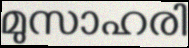
മുസാഹരി